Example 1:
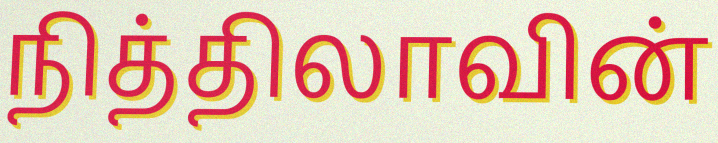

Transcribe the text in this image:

நித்திலாவின்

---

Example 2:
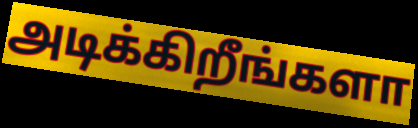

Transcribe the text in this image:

அடிக்கிறீங்களா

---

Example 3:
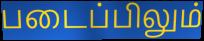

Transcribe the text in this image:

படைப்பிலும்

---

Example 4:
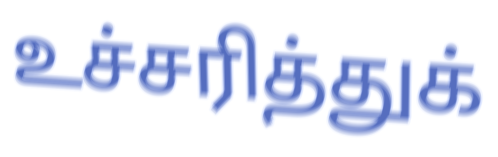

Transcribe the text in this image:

உச்சரித்துக்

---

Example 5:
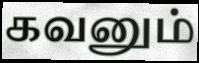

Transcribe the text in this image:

கவனும்